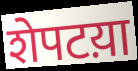
शेपटय़ा